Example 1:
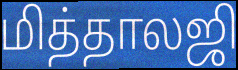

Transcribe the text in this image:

மித்தாலஜி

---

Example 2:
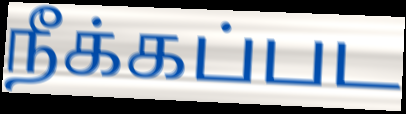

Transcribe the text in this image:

நீக்கப்பட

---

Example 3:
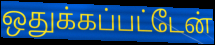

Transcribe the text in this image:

ஒதுக்கப்பட்டேன்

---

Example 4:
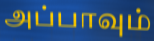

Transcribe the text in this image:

அப்பாவும்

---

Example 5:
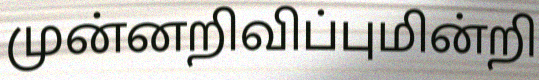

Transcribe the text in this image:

முன்னறிவிப்புமின்றி